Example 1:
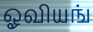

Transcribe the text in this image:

ஓவியங்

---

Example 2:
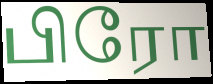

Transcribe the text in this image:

பிரோ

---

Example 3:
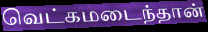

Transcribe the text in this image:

வெட்கமடைந்தான்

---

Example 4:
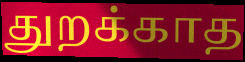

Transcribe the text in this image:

துறக்காத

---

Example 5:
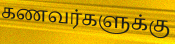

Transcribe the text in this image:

கணவர்களுக்கு